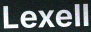
Lexell